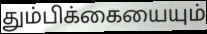
தும்பிக்கையையும்